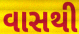
વાસથી